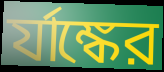
র্যাঙ্কের